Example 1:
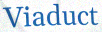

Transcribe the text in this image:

Viaduct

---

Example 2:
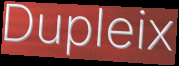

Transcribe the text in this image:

Dupleix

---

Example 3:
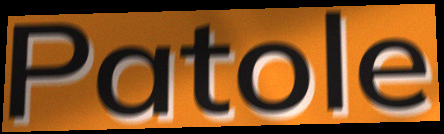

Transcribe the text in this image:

Patole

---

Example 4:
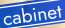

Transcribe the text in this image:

cabinet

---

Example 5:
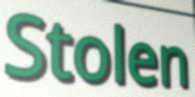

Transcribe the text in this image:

Stolen